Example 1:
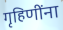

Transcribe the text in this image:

गृहिणींना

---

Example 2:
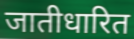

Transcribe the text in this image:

जातीधारित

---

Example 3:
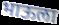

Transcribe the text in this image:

भाऊला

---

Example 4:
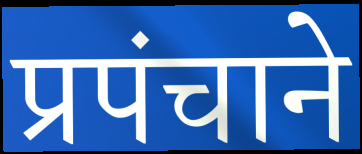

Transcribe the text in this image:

प्रपंचाने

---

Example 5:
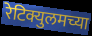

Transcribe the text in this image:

रेटिक्युलमच्या